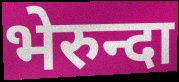
भेरुन्दा